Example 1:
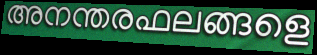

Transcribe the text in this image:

അനന്തരഫലങ്ങളെ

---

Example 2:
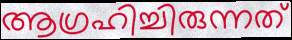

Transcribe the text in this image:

ആഗ്രഹിച്ചിരുന്നത്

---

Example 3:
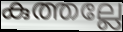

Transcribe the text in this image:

കുത്തല്ലേ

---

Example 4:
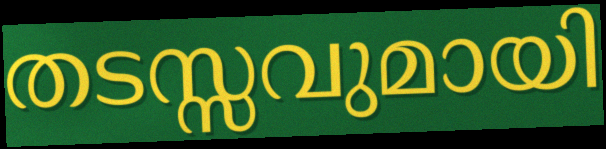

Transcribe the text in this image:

തടസ്സവുമായി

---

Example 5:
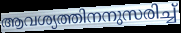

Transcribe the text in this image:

ആവശ്യത്തിനനുസരിച്ച്